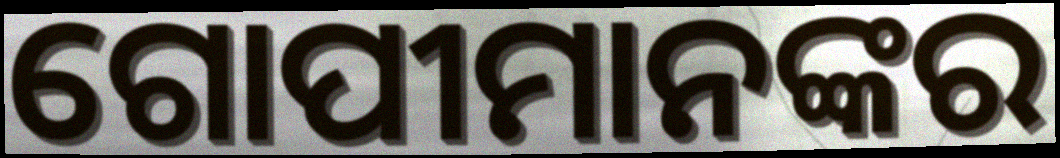
ଗୋପୀମାନଙ୍କର